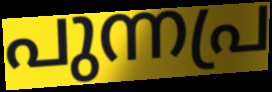
പുന്നപ്ര